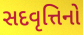
સદવૃત્તિનો